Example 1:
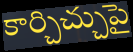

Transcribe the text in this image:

కార్చిచ్చుపై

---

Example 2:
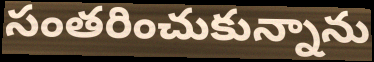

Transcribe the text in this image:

సంతరించుకున్నాను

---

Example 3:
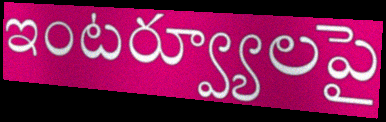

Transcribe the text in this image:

ఇంటర్వ్యూలపై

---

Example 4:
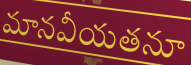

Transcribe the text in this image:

మానవీయతనూ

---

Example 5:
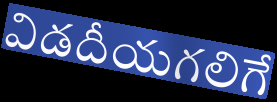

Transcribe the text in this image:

విడదీయగలిగే